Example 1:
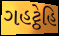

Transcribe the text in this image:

ગહટ્ઠેહિ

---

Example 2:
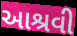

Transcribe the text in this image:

આશ્રવી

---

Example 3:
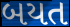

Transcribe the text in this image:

બયત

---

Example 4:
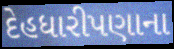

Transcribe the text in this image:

દેહધારીપણાના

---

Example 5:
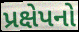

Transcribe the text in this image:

પ્રક્ષેપનો